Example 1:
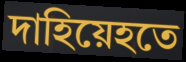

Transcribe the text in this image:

দাহিয়েহতে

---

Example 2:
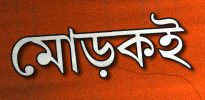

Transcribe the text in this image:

মোড়কই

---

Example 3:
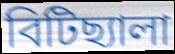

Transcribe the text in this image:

বিটিছ্যালা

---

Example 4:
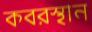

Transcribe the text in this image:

কবরস্থান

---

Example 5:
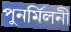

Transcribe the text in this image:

পুনর্মিলনী